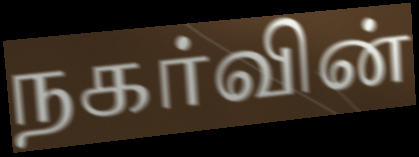
நகர்வின்